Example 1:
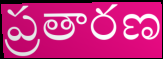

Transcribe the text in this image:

ప్రతారణ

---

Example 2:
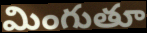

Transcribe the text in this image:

మింగుతూ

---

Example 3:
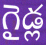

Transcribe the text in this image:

గైడ్ల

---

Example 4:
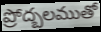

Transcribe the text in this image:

ప్రోద్బలముతో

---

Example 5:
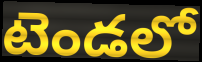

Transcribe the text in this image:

టెండలో